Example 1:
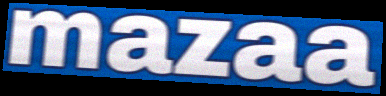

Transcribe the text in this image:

mazaa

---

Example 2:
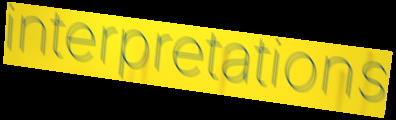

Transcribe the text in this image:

interpretations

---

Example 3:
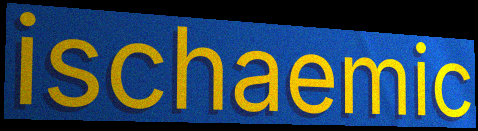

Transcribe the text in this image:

ischaemic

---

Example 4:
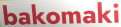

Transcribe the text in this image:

bakomaki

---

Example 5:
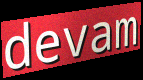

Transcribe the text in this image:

devam